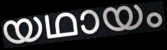
യഥായം